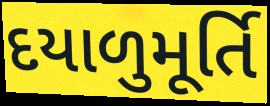
દયાળુમૂર્તિ